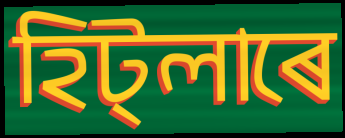
হিট্‌লাৰে